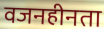
वजनहीनता